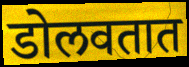
डोलवतात